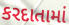
કરદાતામાં